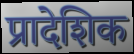
प्रादेशिक